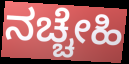
ನಚ್ಚೇಹಿ